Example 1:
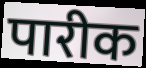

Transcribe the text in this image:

पारीक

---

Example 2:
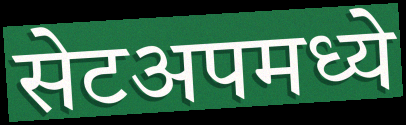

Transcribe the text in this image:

सेटअपमध्ये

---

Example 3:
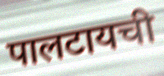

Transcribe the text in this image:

पालटायची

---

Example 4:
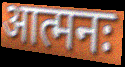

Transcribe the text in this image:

आत्मनः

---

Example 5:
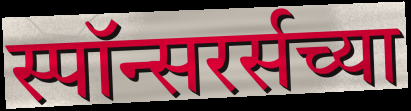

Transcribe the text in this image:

स्पॉन्सरर्सच्या